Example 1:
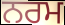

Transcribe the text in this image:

ਨਰਮ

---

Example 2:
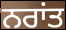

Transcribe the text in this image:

ਨਰਾਂਤ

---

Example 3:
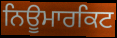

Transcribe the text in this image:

ਨਿਊਮਾਰਕਿਟ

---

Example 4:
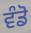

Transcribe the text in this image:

ਵੰਡੋ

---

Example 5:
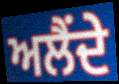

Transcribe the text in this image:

ਅਲੈਂਦੇ